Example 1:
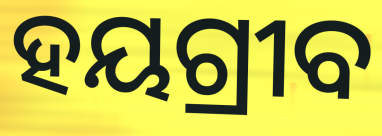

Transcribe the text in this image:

ହୟଗ୍ରୀବ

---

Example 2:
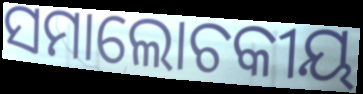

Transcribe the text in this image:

ସମାଲୋଚକୀୟ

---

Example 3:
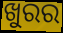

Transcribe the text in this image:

ଖୁରର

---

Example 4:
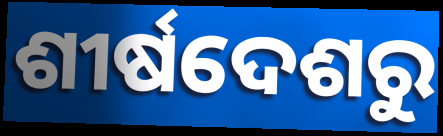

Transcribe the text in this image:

ଶୀର୍ଷଦେଶରୁ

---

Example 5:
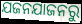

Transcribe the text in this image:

ଯଜନଯାଜନରୁ